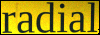
radial